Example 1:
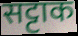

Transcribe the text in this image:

सट्टाक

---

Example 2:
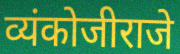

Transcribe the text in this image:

व्यंकोजीराजे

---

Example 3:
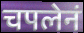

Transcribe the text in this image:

चपलेनं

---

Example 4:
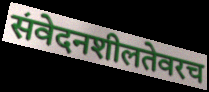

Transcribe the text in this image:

संवेदनशीलतेवरच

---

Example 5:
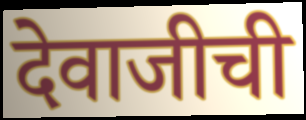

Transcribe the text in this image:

देवाजीची